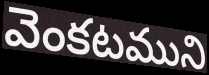
వెంకటముని